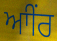
ਆੀਂਰ